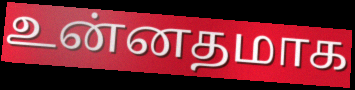
உன்னதமாக